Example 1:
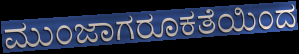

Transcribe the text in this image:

ಮುಂಜಾಗರೂಕತೆಯಿಂದ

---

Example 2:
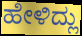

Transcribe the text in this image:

ಹೇಳಿದ್ಲು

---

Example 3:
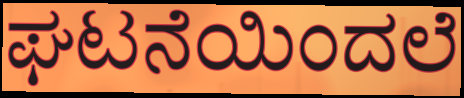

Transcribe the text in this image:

ಘಟನೆಯಿಂದಲೆ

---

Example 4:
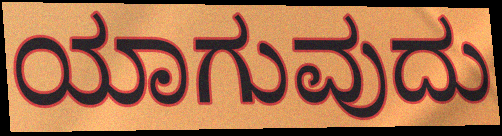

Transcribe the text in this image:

ಯಾಗುವುದು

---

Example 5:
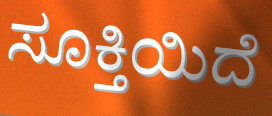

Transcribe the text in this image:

ಸೂಕ್ತಿಯಿದೆ